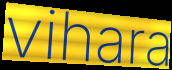
vihara